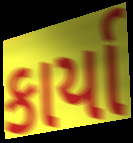
કાર્યા